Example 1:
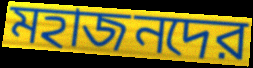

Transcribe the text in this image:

মহাজনদের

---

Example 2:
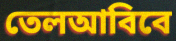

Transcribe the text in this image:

তেলআবিবে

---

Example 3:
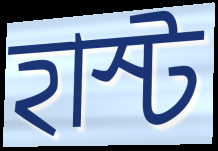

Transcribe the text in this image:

হাস্ট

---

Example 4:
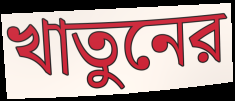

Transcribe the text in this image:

খাতুনের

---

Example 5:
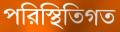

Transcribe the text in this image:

পরিস্থিতিগত